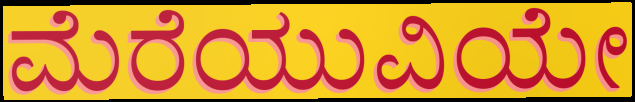
ಮೆರೆಯುವಿಯೇ